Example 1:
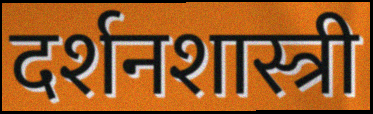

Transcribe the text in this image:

दर्शनशास्त्री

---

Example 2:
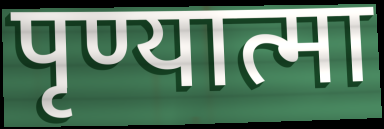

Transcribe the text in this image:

पृण्यात्मा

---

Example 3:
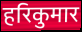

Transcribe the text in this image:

हरिकुमार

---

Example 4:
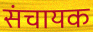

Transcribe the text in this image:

संचायक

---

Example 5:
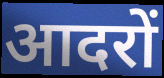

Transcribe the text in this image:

आदरों